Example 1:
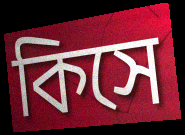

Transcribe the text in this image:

কিসে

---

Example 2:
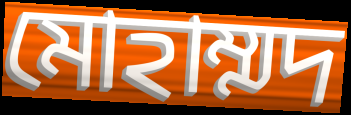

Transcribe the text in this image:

মোহাম্মদ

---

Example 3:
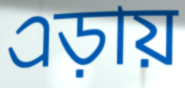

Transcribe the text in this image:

এড়ায়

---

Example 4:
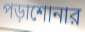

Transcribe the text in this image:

পড়াশোনার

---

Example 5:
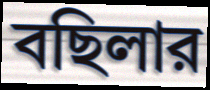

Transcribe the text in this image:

বছিলার